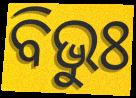
ବିଭୁଃ